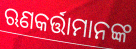
ଋଣକର୍ତ୍ତାମାନଙ୍କ